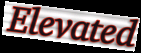
Elevated